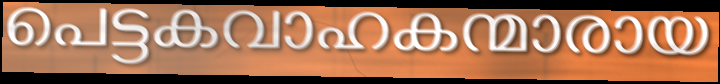
പെട്ടകവാഹകന്മാരായ